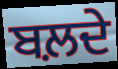
ਬਲ਼ਦੇ